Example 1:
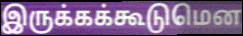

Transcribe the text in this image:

இருக்கக்கூடுமென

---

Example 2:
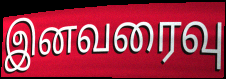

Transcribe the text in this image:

இனவரைவு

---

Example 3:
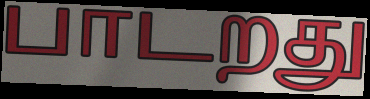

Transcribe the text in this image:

பாடறது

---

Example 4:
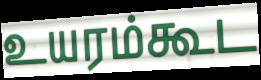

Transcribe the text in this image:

உயரம்கூட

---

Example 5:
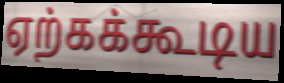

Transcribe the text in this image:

ஏற்கக்கூடிய